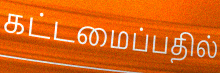
கட்டமைப்பதில்